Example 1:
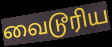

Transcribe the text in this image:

வைடூரிய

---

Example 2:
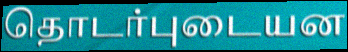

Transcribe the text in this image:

தொடர்புடையன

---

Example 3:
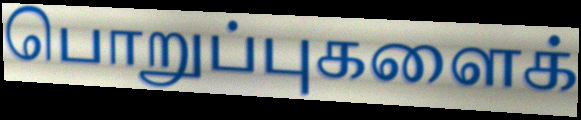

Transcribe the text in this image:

பொறுப்புகளைக்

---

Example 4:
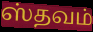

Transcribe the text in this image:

ஸ்தவம்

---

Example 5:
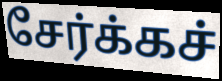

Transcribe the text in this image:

சேர்க்கச்